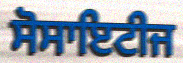
ਸੋਸਾਇਟੀਜ